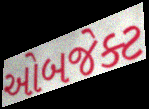
ઓબજેક્ટ